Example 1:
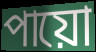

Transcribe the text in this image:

পায়ো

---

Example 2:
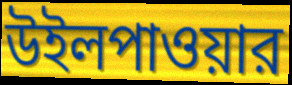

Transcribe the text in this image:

উইলপাওয়ার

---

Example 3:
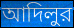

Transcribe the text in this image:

আদিলুর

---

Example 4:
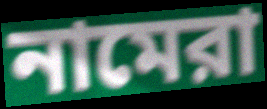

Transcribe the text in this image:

নামেরা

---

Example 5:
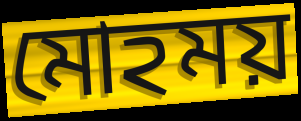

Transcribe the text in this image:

মোহময়